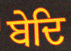
ਬੇਦਿ